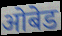
ओबेड